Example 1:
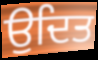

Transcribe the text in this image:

ਉਦਿਤ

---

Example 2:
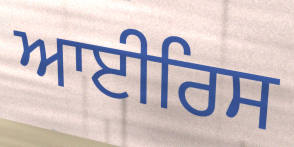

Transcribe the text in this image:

ਆਈਰਿਸ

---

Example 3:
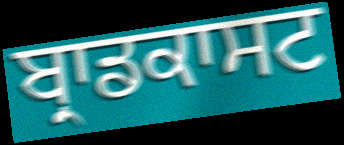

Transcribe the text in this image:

ਬ੍ਰਾਡਕਾਸਟ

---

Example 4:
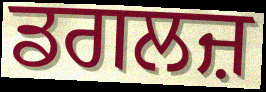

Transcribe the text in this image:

ਡਗਲਜ਼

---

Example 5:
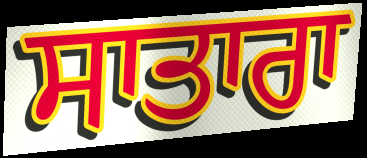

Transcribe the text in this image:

ਸਾਤਾਰਾ